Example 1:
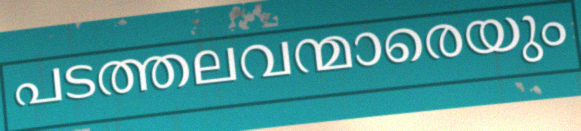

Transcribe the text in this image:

പടത്തലവന്മാരെയും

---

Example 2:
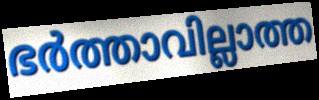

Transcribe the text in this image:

ഭർത്താവില്ലാത്ത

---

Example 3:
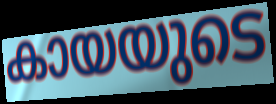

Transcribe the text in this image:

കായയുടെ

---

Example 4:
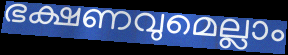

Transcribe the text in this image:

ഭക്ഷണവുമെല്ലാം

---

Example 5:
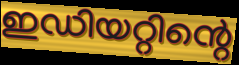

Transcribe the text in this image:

ഇഡിയറ്റിന്റെ